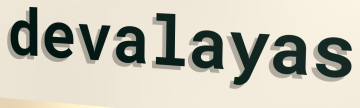
devalayas